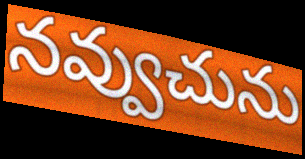
నవ్వుచును